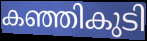
കഞ്ഞികുടി